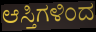
ಆಸ್ತಿಗಳಿಂದ